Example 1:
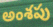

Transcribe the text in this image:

అంశపు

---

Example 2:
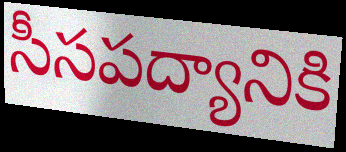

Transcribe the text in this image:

సీసపద్యానికి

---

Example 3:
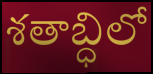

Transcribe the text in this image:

శతాబ్ధిలో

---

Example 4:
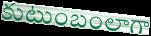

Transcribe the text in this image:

కుటుంబంలాగా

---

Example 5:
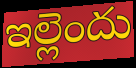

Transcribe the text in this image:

ఇల్లెందు